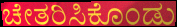
ಚೇತರಿಸಿಕೊಂಡು